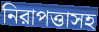
নিরাপত্তাসহ